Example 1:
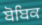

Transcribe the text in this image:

ਬੋਬਿਕ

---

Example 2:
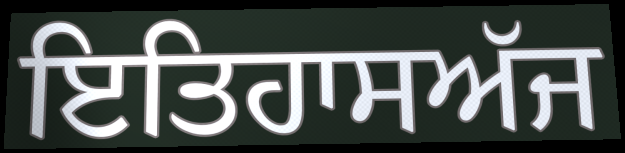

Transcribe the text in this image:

ਇਤਿਹਾਸਅੱਜ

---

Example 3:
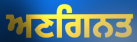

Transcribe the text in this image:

ਅਣਗਿਨਤ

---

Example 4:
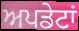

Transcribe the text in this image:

ਅਪਡੇਟਾਂ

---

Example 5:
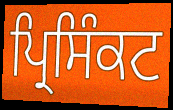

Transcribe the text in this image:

ਪ੍ਰਿਸਿੰਕਟ